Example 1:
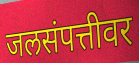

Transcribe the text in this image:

जलसंपत्तीवर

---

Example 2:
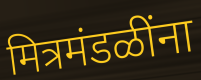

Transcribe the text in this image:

मित्रमंडळींना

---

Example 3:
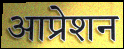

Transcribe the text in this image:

आप्रेशन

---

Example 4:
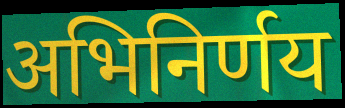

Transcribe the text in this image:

अभिनिर्णय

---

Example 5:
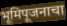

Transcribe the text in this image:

भूमिपूजनाचा